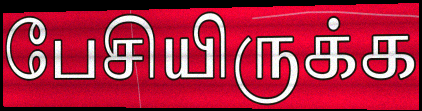
பேசியிருக்க